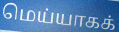
மெய்யாகக்